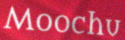
Moochu